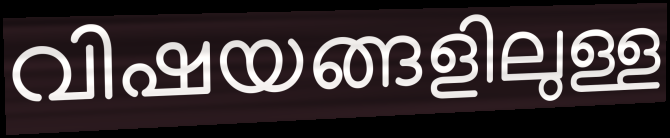
വിഷയങ്ങളിലുള്ള